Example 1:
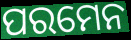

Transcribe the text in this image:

ପରମେନ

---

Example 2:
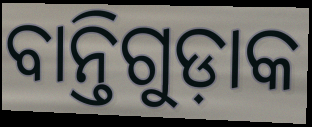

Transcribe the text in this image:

ବାନ୍ତିଗୁଡ଼ାକ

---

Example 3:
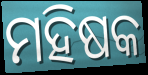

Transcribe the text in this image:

ମହିଷକ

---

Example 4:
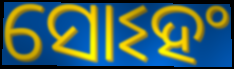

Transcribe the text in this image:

ସୋଽହଂ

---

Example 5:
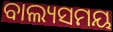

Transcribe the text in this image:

ବାଲ୍ୟସମୟ